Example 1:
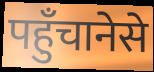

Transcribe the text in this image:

पहुँचानेसे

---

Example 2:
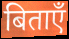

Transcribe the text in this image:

बिताएँ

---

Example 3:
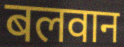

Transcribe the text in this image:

बलवान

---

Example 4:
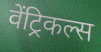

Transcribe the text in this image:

वेंट्रिकल्स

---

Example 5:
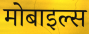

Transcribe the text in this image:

मोबाइल्स